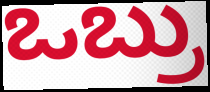
ಒಬ್ರು